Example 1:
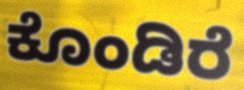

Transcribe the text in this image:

ಕೊಂಡಿರೆ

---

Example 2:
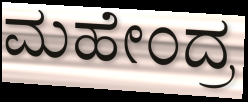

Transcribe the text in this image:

ಮಹೇಂದ್ರ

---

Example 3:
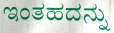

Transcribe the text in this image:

ಇಂತಹದನ್ನು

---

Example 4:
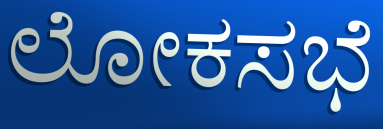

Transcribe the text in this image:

ಲೋಕಸಭೆ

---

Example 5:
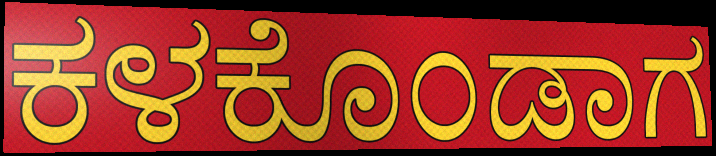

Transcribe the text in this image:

ಕಳಕೊಂಡಾಗ